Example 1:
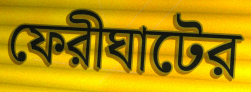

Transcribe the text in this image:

ফেরীঘাটের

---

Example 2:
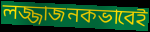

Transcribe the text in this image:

লজ্জাজনকভাবেই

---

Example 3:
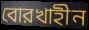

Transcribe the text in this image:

বোরখাহীন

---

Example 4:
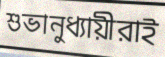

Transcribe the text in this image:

শুভানুধ্যায়ীরাই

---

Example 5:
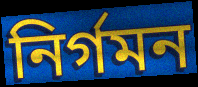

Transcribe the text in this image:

নির্গমন